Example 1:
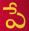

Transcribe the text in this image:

పే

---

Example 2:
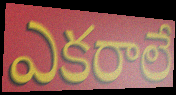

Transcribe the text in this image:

ఎకరాలే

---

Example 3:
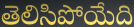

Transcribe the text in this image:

తెలిసిపోయేది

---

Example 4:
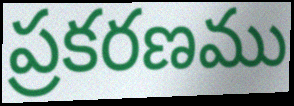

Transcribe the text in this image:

ప్రకరణము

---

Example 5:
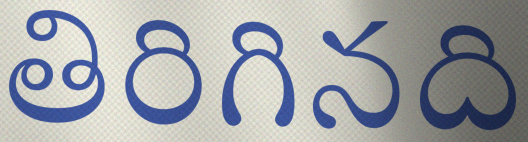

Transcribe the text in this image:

తిరిగినది